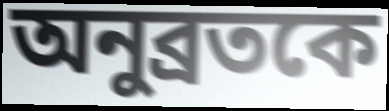
অনুব্রতকে